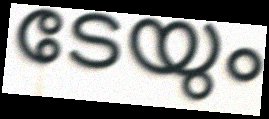
ടേയും